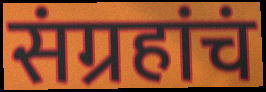
संग्रहांचं